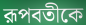
রূপবতীকে